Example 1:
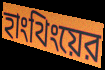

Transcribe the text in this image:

হাংথিংয়ের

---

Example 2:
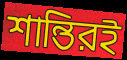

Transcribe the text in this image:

শান্তিরই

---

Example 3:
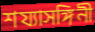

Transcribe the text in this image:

শয্যাসঙ্গিনী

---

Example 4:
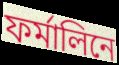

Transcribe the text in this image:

ফর্মালিনে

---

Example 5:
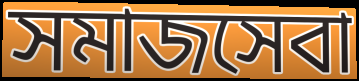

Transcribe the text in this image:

সমাজসেবা